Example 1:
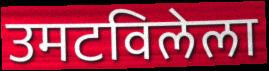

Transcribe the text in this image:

उमटविलेला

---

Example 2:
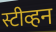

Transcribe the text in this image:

स्टीव्हन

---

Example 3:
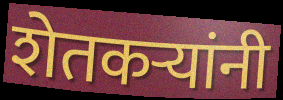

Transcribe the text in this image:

शेतकर्‍यांनी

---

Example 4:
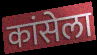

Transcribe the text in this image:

कांसेला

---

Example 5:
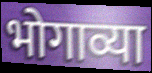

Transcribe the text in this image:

भोगाव्या